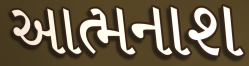
આત્મનાશ